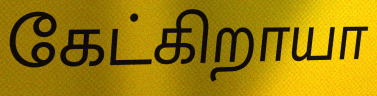
கேட்கிறாயா